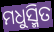
ମଧୁସ୍ମିତ